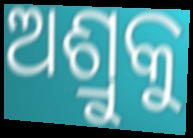
ଅଶ୍ରୁକୁ